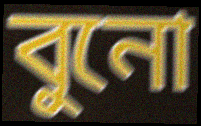
বুনো